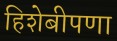
हिशेबीपणा